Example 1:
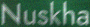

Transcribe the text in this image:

Nuskha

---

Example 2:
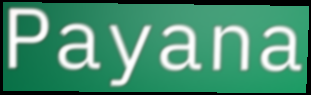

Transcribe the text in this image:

Payana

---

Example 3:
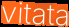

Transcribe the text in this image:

vitata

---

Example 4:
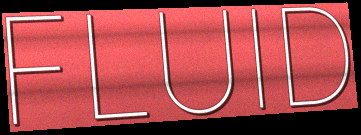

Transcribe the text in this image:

FLUID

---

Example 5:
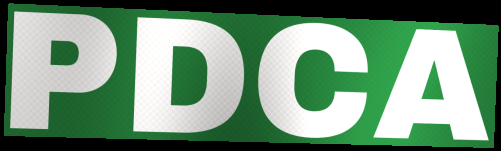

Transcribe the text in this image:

PDCA